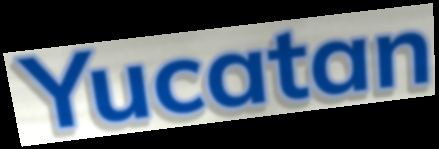
Yucatan